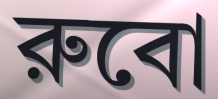
রুবো